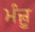
ਮੰਜ਼ੂ